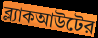
ব্ল্যাকআউটের